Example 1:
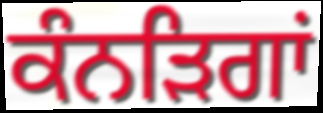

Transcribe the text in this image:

ਕੰਨੜਿਗਾਂ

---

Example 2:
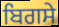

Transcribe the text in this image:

ਬਿਗਸੇ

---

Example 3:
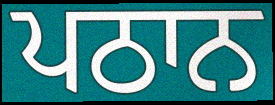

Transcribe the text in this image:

ਪਠਾਨ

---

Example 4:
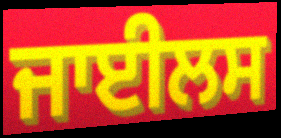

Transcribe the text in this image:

ਜਾਈਲਸ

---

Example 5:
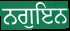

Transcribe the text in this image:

ਨਗੁਇਨ